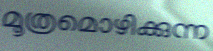
മൂത്രമൊഴിക്കുന്ന